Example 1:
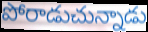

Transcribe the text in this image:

పోరాడుచున్నాడు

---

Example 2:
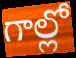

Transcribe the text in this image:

గాల్లో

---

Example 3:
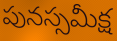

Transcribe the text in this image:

పునస్సమీక్ష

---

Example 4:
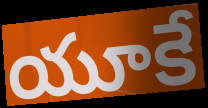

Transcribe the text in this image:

యూకే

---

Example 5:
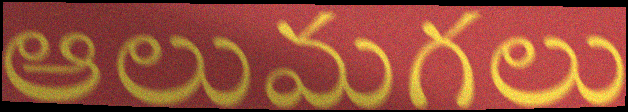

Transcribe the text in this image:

ఆలుమగలు